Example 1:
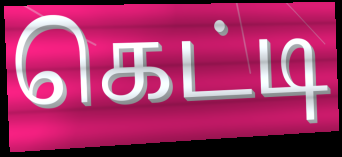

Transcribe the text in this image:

கெட்டி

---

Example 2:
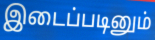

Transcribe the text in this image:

இடைப்படினும்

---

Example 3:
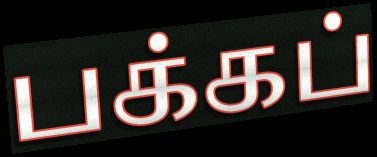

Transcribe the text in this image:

பக்கப்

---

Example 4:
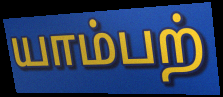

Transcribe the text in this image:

யாம்பற்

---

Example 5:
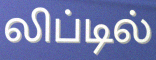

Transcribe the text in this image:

லிப்டில்